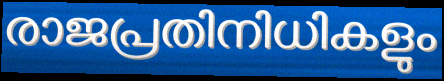
രാജപ്രതിനിധികളും